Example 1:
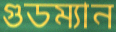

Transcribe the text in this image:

গুডম্যান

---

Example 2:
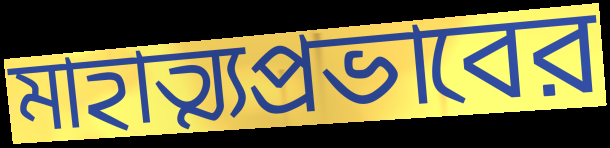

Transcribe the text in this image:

মাহাত্ম্যপ্রভাবের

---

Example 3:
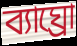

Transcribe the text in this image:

ব্যাঘ্রো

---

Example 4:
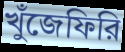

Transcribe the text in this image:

খুঁজেফিরি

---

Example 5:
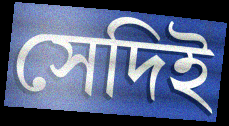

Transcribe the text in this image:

সেদিই